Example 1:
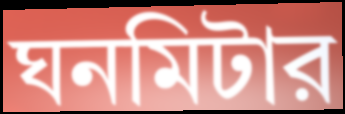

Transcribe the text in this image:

ঘনমিটার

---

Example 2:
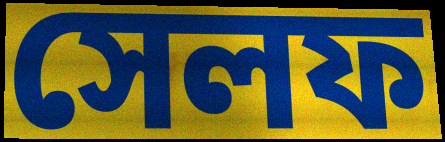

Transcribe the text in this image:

সেলফ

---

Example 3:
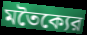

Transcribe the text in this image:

মতৈক্যের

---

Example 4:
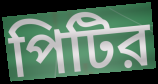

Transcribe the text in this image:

পিটির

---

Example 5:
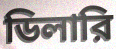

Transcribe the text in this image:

ডিলারি